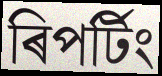
ৰিপৰ্টিং